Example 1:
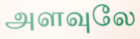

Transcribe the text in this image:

அளவுலே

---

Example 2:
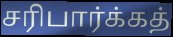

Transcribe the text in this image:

சரிபார்க்கத்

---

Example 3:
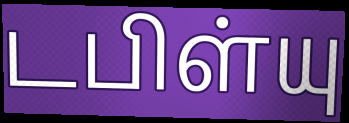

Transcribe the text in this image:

டபிள்யு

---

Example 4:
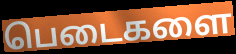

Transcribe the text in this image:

பெடைகளை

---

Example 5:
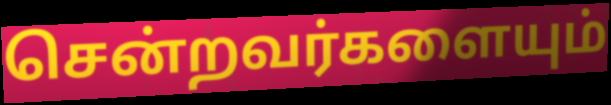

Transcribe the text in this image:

சென்றவர்களையும்